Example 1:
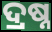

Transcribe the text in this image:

ଦ୍ରଷ୍ନ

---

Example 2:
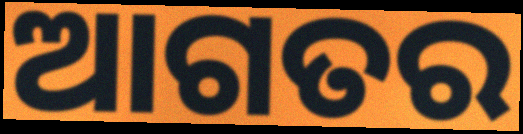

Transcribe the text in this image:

ଆଗତର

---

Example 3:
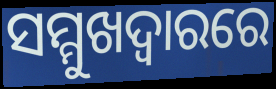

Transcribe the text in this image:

ସମ୍ମୁଖଦ୍ୱାରରେ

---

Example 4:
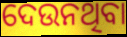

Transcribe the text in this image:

ଦେଉନଥିବା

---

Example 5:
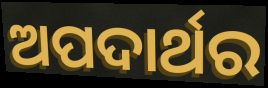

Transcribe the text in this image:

ଅପଦାର୍ଥର